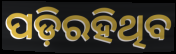
ପଡ଼ିରହିଥିବ